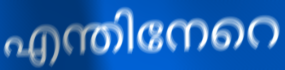
എന്തിനേറെ